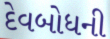
દેવબોધની